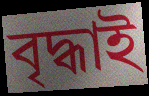
বৃদ্ধাই